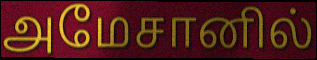
அமேசானில்